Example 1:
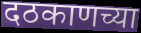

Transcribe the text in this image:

दठकाणच्या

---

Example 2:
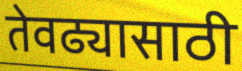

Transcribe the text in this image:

तेवढ्यासाठी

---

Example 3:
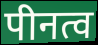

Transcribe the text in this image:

पीनत्व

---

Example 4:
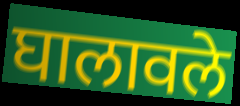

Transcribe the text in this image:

घालावले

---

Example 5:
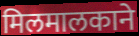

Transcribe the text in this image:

मिलमालकाने